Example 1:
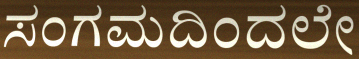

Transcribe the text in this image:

ಸಂಗಮದಿಂದಲೇ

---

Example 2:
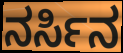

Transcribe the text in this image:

ನರ್ಸಿನ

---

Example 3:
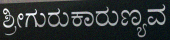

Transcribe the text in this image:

ಶ್ರೀಗುರುಕಾರುಣ್ಯವ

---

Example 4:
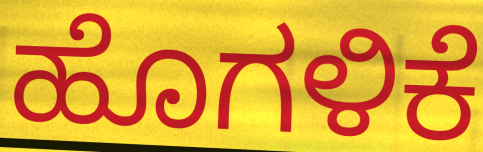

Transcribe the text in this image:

ಹೊಗಳಿಕೆ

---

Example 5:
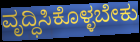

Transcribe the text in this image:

ವೃದ್ಧಿಸಿಕೊಳ್ಳಬೇಕು